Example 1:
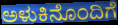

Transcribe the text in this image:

ಅಳುಕಿನೊಂದಿಗೆ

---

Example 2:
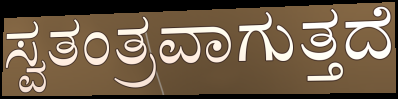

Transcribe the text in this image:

ಸ್ವತಂತ್ರವಾಗುತ್ತದೆ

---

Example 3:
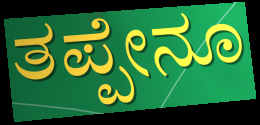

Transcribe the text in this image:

ತಪ್ಪೇನೂ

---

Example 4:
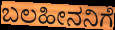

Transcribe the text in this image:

ಬಲಹೀನನಿಗೆ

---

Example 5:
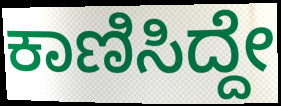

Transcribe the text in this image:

ಕಾಣಿಸಿದ್ದೇ